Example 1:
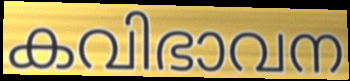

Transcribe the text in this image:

കവിഭാവന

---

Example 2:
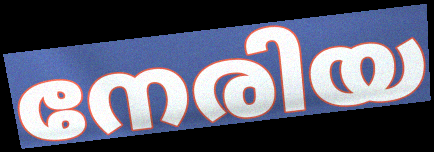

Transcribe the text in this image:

നേരിയ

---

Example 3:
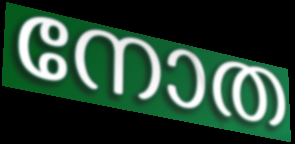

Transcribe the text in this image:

നോത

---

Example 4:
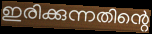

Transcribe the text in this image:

ഇരിക്കുന്നതിന്റെ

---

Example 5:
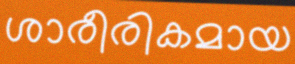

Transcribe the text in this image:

ശാരീരികമായ